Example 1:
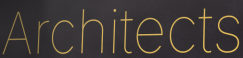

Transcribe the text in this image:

Architects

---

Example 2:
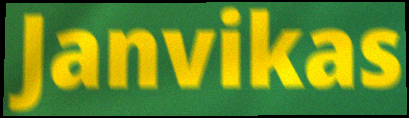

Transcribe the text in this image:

Janvikas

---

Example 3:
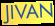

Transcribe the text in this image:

JIVAN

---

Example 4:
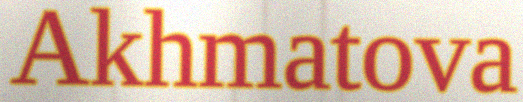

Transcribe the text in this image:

Akhmatova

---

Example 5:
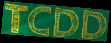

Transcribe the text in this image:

TCDD